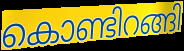
കൊണ്ടിറങ്ങി